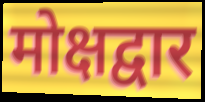
मोक्षद्वार